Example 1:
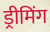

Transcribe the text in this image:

ड्रीमिंग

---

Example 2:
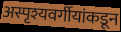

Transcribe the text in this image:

अस्पृश्यवर्गीयांकडून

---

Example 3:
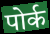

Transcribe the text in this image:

पोर्क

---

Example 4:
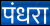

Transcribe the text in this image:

पंधरा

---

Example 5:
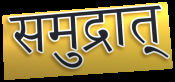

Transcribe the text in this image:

समुद्रात्